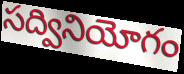
సద్వినియోగం